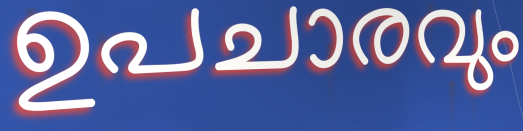
ഉപചാരവും